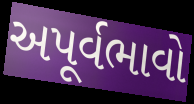
અપૂર્વભાવો